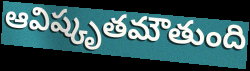
ఆవిష్కృతమౌతుంది